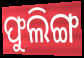
ଫୁଲିଙ୍ଗ